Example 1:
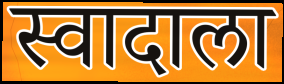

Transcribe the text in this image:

स्वादाला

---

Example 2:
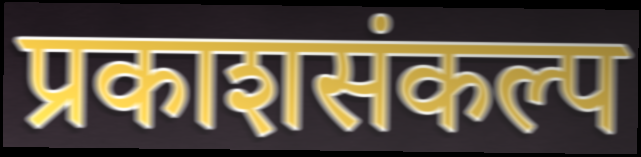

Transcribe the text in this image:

प्रकाशसंकल्प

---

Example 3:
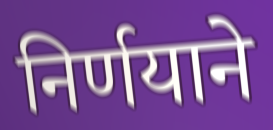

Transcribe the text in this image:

निर्णयाने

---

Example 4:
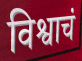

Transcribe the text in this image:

विश्वाचं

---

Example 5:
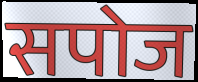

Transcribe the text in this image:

सपोज